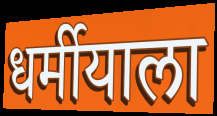
धर्मीयाला